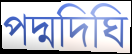
পদ্মদিঘি